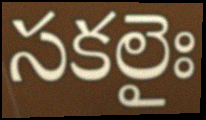
సకలైః